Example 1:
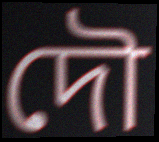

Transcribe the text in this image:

দৌ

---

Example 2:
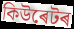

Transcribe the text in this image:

কিউৰেটৰ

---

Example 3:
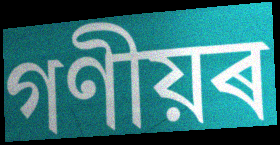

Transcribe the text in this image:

গণীয়ৰ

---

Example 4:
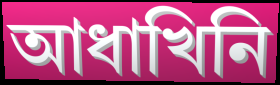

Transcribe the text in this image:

আধাখিনি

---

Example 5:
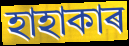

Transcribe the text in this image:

হাহাকাৰ